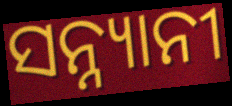
ସନ୍ନ୍ୟାନୀ